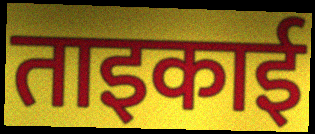
ताइकाई